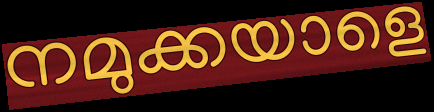
നമുക്കയാളെ